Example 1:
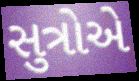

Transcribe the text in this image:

સુત્રોએ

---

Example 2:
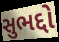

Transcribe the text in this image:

સુભદ્દો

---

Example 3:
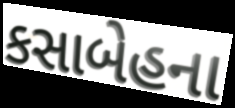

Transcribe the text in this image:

કસાબેહના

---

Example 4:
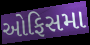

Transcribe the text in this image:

ઓફિસમા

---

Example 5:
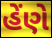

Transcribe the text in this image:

હેંણે